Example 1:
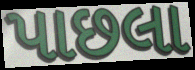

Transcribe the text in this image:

પાછલા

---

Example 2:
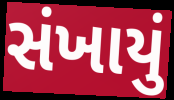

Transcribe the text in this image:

સંખાયું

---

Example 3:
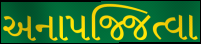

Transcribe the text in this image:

અનાપજ્જિત્વા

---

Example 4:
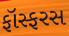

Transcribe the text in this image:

ફૉસ્ફરસ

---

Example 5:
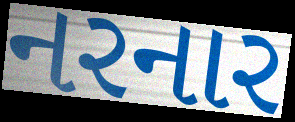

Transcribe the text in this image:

નરનાર